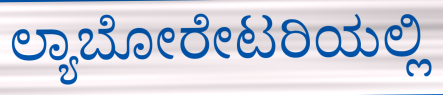
ಲ್ಯಾಬೋರೇಟರಿಯಲ್ಲಿ